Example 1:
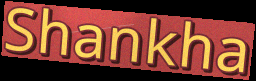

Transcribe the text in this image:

Shankha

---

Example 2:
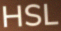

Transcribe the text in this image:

HSL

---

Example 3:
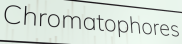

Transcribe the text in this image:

Chromatophores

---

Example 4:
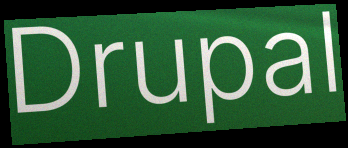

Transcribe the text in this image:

Drupal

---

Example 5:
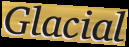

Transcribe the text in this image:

Glacial